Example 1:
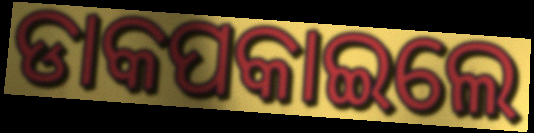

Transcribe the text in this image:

ଡାକପକାଇଲେ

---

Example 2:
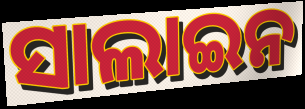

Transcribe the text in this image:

ସାଲାଇନ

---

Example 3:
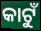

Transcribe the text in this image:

କାଟୁଁ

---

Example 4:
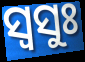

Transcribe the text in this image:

ସ୍ଵସୁଃ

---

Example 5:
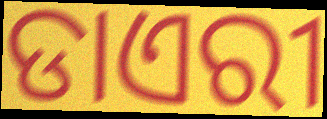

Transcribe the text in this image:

ଡାଏରୀ